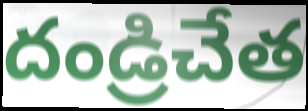
దండ్రిచేత